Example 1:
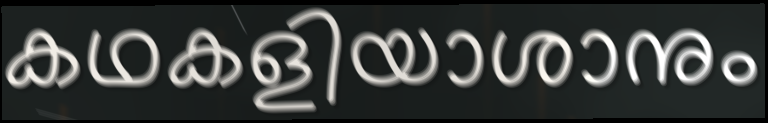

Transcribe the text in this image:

കഥകളിയാശാനും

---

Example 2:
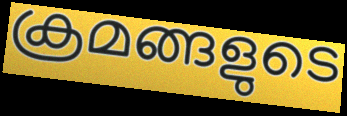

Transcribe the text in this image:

ക്രമങ്ങളുടെ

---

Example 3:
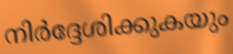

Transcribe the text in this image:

നിർദ്ദേശിക്കുകയും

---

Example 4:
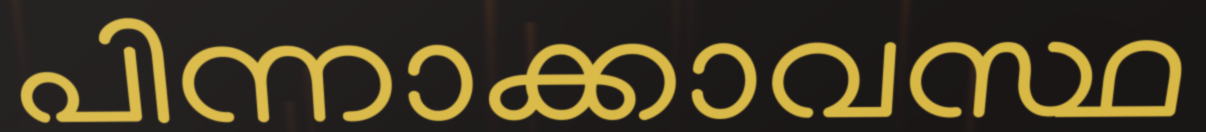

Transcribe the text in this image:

പിന്നാക്കാവസ്ഥ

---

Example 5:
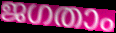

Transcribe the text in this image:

ജഗതാം